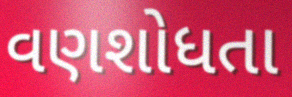
વણશોધતા